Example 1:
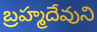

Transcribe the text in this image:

బ్రహ్మదేవుని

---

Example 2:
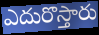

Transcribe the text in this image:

ఎదురొస్తారు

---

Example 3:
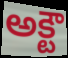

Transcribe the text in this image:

అక్టౌ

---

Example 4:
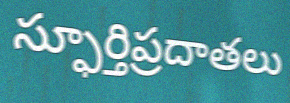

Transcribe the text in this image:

స్ఫూర్తిప్రదాతలు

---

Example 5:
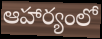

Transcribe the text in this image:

ఆహార్యంలో